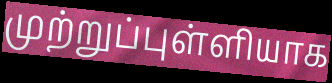
முற்றுப்புள்ளியாக